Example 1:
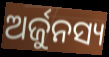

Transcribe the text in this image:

ଅର୍ଜୁନସ୍ୟ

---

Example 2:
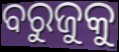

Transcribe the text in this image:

ବରୁଜୁକୁ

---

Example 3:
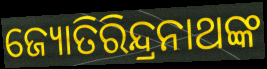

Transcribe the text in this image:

ଜ୍ୟୋତିରିନ୍ଦ୍ରନାଥଙ୍କ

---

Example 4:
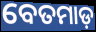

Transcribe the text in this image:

ବେତମାଡ଼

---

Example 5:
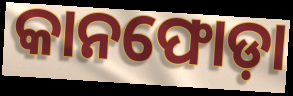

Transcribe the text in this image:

କାନଫୋଡ଼ା